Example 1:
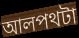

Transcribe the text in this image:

আলপথটা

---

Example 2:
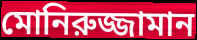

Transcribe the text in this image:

মোনিরুজ্জামান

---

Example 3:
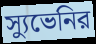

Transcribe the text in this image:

স্যুভেনির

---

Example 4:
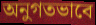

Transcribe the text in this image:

অনুগতভাবে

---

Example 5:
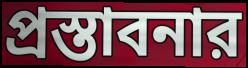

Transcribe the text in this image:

প্রস্তাবনার